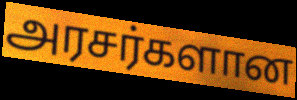
அரசர்களான